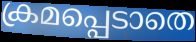
ക്രമപ്പെടാതെ